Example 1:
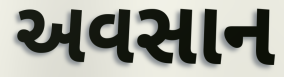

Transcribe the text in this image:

અવસાન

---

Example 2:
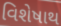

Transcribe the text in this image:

વિશેષાથ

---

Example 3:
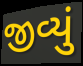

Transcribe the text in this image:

જીવ્યું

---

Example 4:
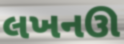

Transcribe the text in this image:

લખનઊ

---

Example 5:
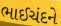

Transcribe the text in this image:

ભાઈચંદને